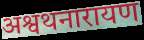
अश्वथनारायण